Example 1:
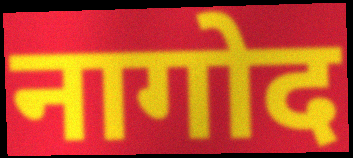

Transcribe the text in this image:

नागोद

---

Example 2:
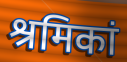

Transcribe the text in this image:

श्रमिकां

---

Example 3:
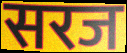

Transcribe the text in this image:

सरज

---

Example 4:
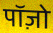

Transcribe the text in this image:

पॉज़ो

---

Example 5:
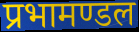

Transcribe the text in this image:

प्रभामण्डल